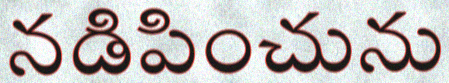
నడిపించును